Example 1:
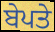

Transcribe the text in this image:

ਬੇਪਤੇ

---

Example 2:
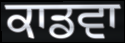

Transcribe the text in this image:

ਕਾਡਵਾ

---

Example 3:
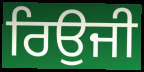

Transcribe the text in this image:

ਰਿਉਜੀ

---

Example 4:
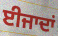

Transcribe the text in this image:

ਈਜਾਦਾਂ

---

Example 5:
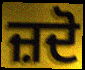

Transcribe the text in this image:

ਜ਼ਦੋ